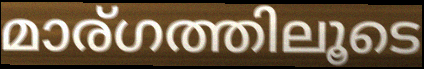
മാര്ഗത്തിലൂടെ